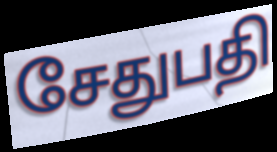
சேதுபதி